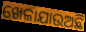
ଖେଳାଯାଉଅଛି